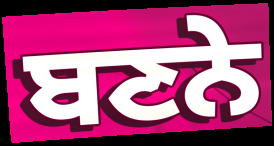
ਬਣਨੇ